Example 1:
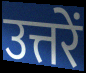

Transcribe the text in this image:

उत्तरें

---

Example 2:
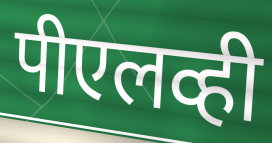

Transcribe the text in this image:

पीएलव्ही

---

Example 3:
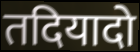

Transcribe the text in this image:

तदियादो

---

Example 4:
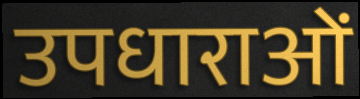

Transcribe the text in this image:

उपधाराओं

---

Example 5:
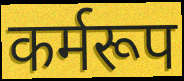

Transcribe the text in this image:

कर्मरूप